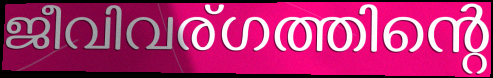
ജീവിവര്ഗത്തിന്റെ